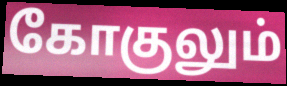
கோகுலும்